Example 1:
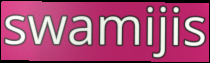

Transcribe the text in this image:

swamijis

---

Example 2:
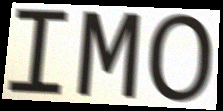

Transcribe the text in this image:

IMO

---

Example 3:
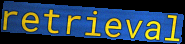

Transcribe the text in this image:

retrieval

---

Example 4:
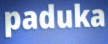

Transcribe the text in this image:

paduka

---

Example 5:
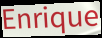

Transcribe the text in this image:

Enrique